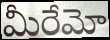
మీరేమో